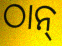
ଠାନ୍